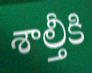
శాల్తీకి